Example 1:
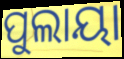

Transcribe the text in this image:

ପୁଲାୟା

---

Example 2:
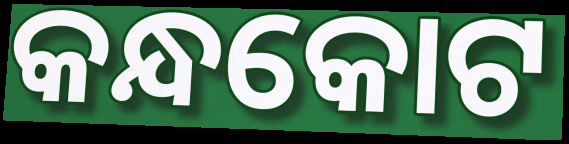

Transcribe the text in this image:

କନ୍ଧକୋଟ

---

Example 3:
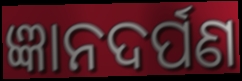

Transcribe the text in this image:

ଜ୍ଞାନଦର୍ପଣ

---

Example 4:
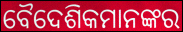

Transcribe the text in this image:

ବୈଦେଶିକମାନଙ୍କର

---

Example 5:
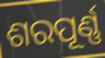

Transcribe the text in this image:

ଶରପୂର୍ଣ୍ଣ